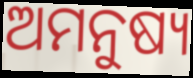
ଅମନୁଷ୍ୟ